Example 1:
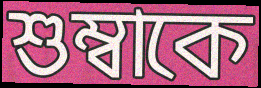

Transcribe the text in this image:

শুম্বাকে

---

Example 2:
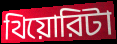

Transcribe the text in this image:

থিয়োরিটা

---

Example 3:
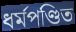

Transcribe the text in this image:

ধর্মপণ্ডিত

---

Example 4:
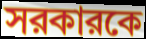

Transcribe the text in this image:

সরকারকে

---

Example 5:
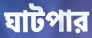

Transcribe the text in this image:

ঘাটপার